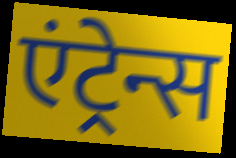
एंट्रेन्स